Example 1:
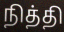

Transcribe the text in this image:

நித்தி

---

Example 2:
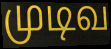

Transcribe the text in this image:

முடிவ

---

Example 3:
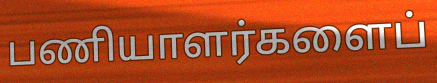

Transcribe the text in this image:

பணியாளர்களைப்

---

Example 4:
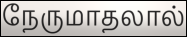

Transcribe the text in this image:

நேருமாதலால்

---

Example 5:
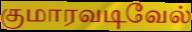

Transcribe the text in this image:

குமாரவடிவேல்